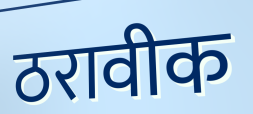
ठरावीक